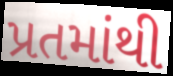
પ્રતમાંથી